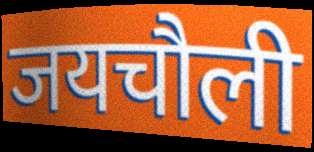
जयचौली